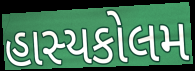
હાસ્યકોલમ